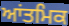
ਆਂਤਮਿਕ